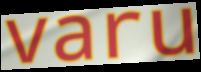
varu